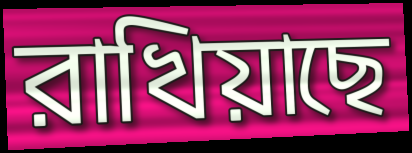
রাখিয়াছে